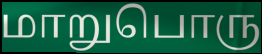
மாறுபொரு